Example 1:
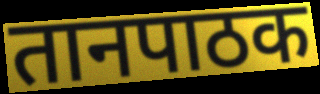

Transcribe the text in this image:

तानपाठक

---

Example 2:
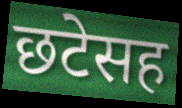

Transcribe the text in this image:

छटेसह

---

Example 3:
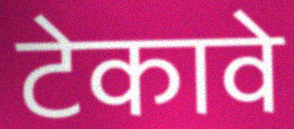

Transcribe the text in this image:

टेकावे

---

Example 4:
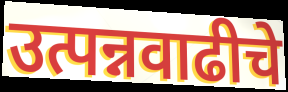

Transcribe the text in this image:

उत्पन्नवाढीचे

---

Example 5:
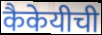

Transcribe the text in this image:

कैकेयीची